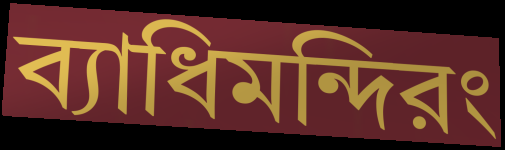
ব্যাধিমন্দিরং